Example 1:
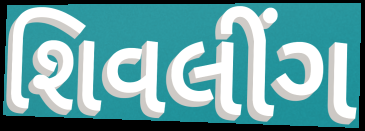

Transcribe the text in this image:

શિવલીંગ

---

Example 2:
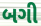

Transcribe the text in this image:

બગી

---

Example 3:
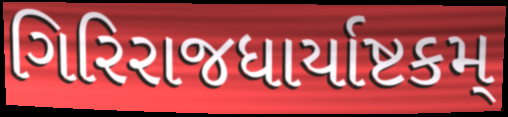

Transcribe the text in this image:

ગિરિરાજધાર્યાષ્ટકમ્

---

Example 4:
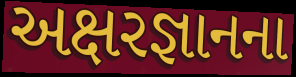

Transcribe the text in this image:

અક્ષરજ્ઞાનના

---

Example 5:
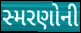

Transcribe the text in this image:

સ્મરણોની